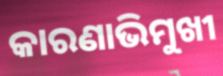
କାରଣାଭିମୁଖୀ